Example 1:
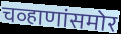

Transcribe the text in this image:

चव्हाणांसमोर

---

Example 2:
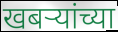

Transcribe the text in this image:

खबऱ्यांच्या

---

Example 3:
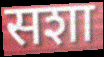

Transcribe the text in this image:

सशा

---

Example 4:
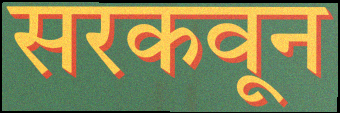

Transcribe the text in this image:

सरकवून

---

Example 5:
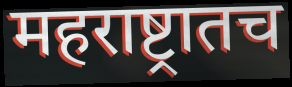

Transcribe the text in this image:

महराष्ट्रातच